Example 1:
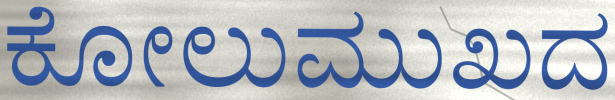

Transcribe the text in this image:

ಕೋಲುಮುಖದ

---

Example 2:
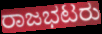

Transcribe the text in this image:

ರಾಜಭಟರು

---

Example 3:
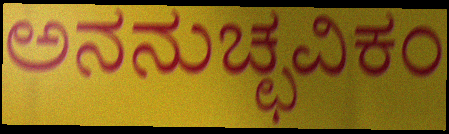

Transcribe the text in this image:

ಅನನುಚ್ಛವಿಕಂ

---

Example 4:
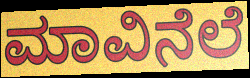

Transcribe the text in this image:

ಮಾವಿನೆಲೆ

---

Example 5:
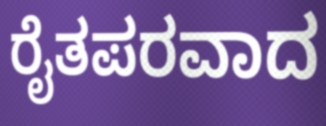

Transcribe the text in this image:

ರೈತಪರವಾದ